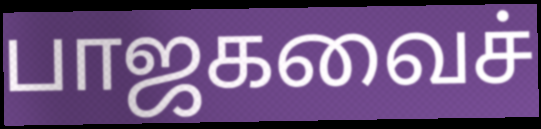
பாஜகவைச்